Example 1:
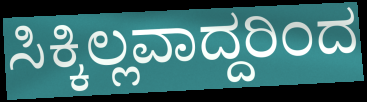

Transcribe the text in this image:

ಸಿಕ್ಕಿಲ್ಲವಾದ್ದರಿಂದ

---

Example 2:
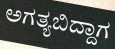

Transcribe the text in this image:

ಅಗತ್ಯಬಿದ್ದಾಗ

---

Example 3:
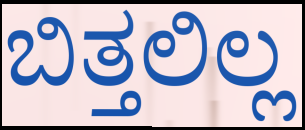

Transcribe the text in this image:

ಬಿತ್ತಲಿಲ್ಲ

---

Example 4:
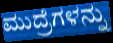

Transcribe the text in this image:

ಮುದ್ರೆಗಳನ್ನು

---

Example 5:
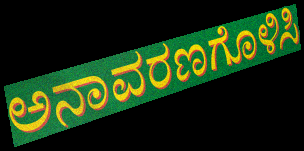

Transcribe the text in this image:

ಅನಾವರಣಗೊಳಿಸಿ